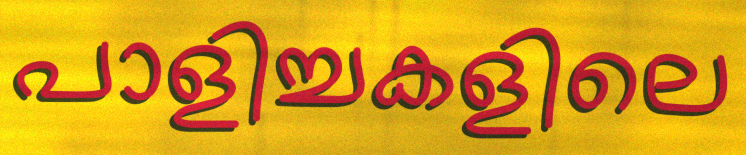
പാളിച്ചകളിലെ